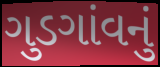
ગુડગાંવનું